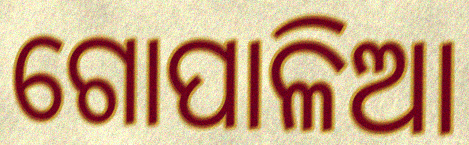
ଗୋପାଳିଆ